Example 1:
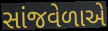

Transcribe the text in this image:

સાંજવેળાએ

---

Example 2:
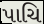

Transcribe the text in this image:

પાચિ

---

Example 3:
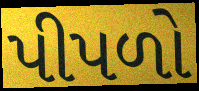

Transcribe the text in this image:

પીપળો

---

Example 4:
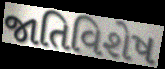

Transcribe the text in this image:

જાતિવિશેષ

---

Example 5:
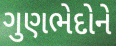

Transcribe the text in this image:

ગુણભેદોને